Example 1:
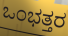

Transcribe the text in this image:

ಒಂಭತ್ತರ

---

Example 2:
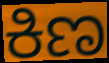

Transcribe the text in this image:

ಕಿಣ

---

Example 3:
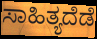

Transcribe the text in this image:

ಸಾಹಿತ್ಯದೆಡೆ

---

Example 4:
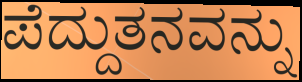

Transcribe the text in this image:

ಪೆದ್ದುತನವನ್ನು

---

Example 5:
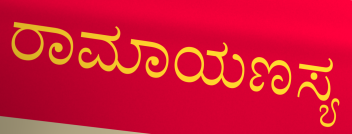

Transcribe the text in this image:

ರಾಮಾಯಣಸ್ಯ